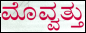
ಮೊವ್ವತ್ತು